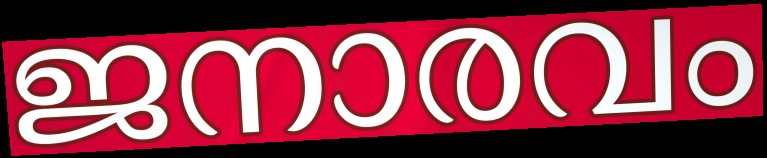
ജനാരവം